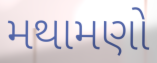
મથામણો